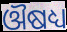
ଔଷଧ୍ୟ